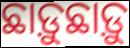
ଛାଡ଼ୁଛାଡ଼ୁ